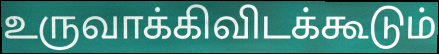
உருவாக்கிவிடக்கூடும்